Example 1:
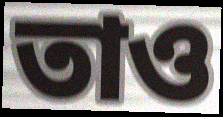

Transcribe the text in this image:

তাও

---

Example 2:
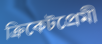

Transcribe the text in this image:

ক্রিকেটপ্রেমী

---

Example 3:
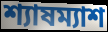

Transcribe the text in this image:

শ্যাষম্যাশ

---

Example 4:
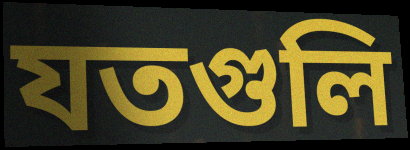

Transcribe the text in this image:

যতগুলি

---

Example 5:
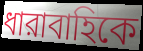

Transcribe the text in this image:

ধারাবাহিকে